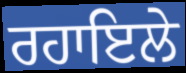
ਰਹਾਇਲੇ